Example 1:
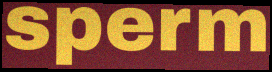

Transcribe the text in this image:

sperm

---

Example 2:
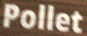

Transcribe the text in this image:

Pollet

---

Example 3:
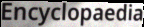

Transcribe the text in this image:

Encyclopaedia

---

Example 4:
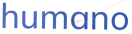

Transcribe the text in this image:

humano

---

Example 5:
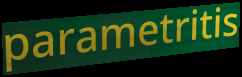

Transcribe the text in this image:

parametritis